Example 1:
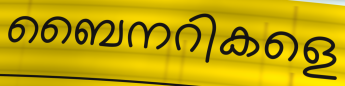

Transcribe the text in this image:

ബൈനറികളെ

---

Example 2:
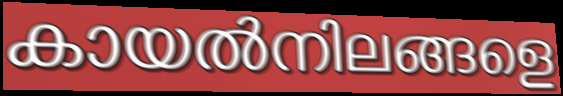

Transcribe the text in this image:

കായൽനിലങ്ങളെ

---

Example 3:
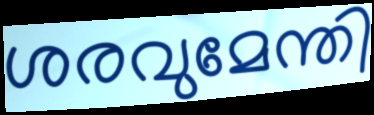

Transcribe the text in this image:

ശരവുമേന്തി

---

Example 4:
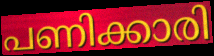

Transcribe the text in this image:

പണിക്കാരി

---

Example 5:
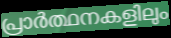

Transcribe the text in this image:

പ്രാർത്ഥനകളിലും